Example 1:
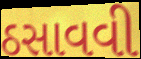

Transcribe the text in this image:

ઠસાવવી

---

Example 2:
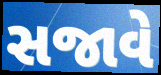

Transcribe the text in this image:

સજાવે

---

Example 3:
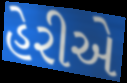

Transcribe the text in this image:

હેરીએ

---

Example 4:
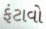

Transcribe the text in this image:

ફંટાવો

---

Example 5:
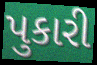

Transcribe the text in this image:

પુકારી